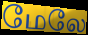
மேலே